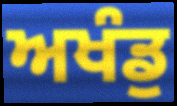
ਅਖੰਡੁ